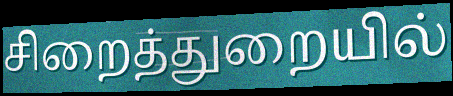
சிறைத்துறையில்